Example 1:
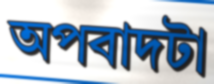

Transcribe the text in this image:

অপবাদটা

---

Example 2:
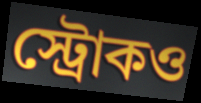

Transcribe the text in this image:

স্ট্রোকও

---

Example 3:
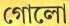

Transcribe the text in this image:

গোলো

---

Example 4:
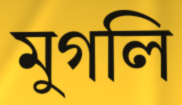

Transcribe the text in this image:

মুগলি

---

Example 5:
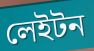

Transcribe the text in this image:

লেইটন